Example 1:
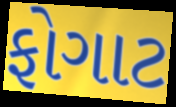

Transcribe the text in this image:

ફોગાટ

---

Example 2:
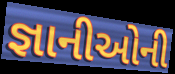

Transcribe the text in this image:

જ્ઞાનીઓની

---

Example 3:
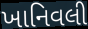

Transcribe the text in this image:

ખાનિવલી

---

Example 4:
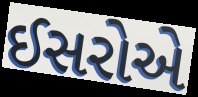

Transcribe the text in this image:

ઈસરોએ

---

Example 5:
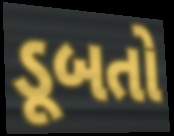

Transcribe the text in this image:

ડૂબતો